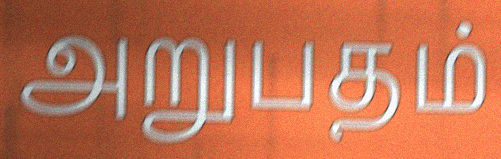
அறுபதம்